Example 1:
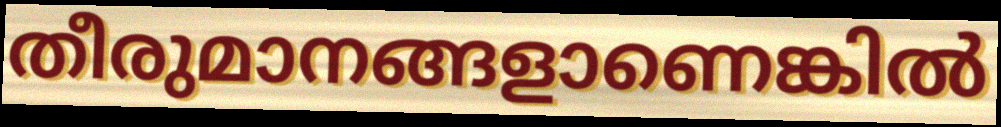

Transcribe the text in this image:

തീരുമാനങ്ങളാണെങ്കിൽ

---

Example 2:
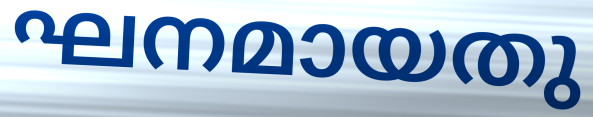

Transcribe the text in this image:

ഘനമായതു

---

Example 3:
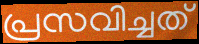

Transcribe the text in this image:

പ്രസവിച്ചത്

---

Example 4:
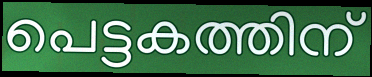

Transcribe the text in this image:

പെട്ടകത്തിന്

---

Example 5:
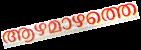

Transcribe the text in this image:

ആഴമാഴത്തെ